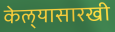
केल्यासारखी